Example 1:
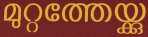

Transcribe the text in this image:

മുറ്റത്തേയ്ക്കു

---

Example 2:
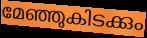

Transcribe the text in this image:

മേഞ്ഞുകിടക്കും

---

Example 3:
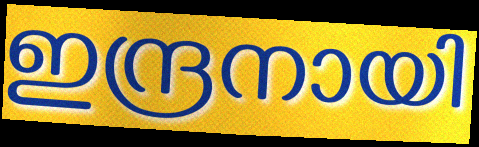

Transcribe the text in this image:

ഇന്ദ്രനായി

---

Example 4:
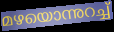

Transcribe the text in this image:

മഴയൊന്നുറച്ച്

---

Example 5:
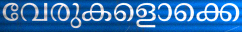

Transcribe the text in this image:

വേരുകളൊക്കെ